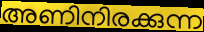
അണിനിരക്കുന്ന